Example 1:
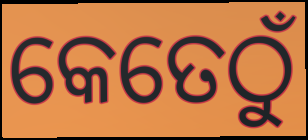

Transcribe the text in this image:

କେତେଠୁଁ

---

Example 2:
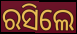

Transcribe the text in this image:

ରସିଲେ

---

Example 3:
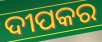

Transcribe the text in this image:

ଦୀପକର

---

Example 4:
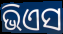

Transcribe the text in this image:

ଭିଏସ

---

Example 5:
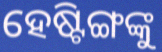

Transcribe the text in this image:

ହେଷ୍ଟିଙ୍ଗଙ୍କୁ